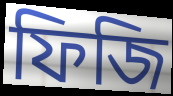
ফিজি